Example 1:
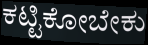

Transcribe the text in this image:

ಕಟ್ಟಿಕೋಬೇಕು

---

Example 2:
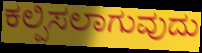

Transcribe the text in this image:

ಕಲ್ಪಿಸಲಾಗುವುದು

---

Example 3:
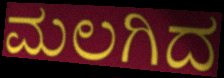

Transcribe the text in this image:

ಮಲಗಿದ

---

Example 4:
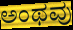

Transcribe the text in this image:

ಅಂಥವು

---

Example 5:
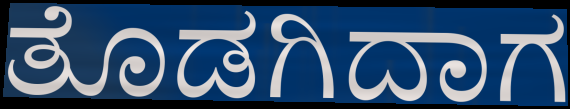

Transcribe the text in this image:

ತೊಡಗಿದಾಗ